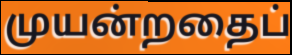
முயன்றதைப்